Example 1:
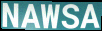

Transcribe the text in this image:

NAWSA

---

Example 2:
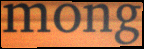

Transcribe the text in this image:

mong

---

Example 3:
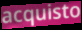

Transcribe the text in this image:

acquisto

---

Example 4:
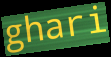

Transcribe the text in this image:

ghari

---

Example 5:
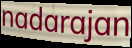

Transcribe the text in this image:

nadarajan